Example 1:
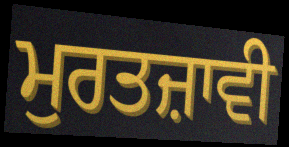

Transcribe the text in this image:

ਮੁਰਤਜ਼ਾਵੀ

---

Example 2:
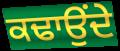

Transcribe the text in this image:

ਕਢਾਉਂਦੇ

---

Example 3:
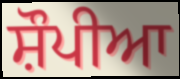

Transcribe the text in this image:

ਸ਼ੌਪੀਆ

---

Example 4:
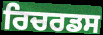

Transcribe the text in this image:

ਰਿਚਰਡਸ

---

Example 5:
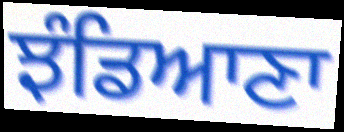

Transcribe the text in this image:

ਝੰਡਿਆਣਾ